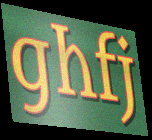
ghfj